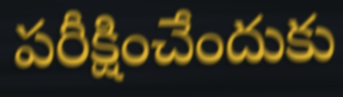
పరీక్షించేందుకు